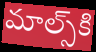
మాల్స్‌కి